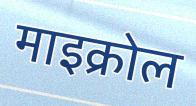
माइक्रोल